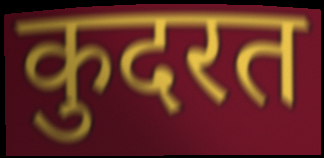
कुदरत